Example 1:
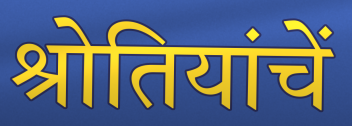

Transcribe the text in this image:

श्रोतियांचें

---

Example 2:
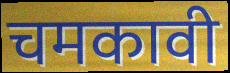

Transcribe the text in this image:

चमकावी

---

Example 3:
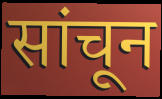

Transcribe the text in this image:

सांचून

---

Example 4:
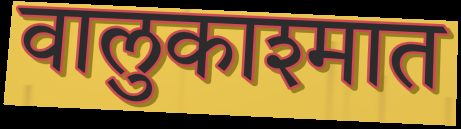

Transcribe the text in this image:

वालुकाश्मात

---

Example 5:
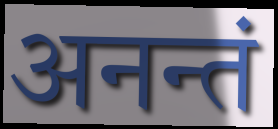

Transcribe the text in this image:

अनन्तं